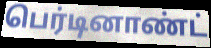
பெர்டினாண்ட்